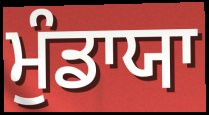
ਮੁੰਡਾਯਾ